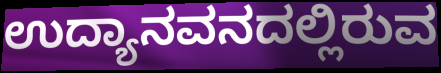
ಉದ್ಯಾನವನದಲ್ಲಿರುವ